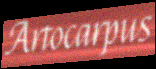
Artocarpus